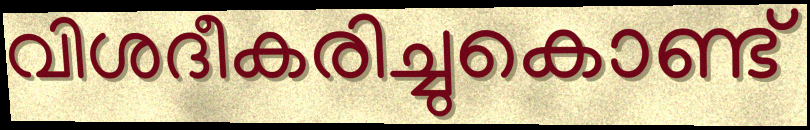
വിശദീകരിച്ചുകൊണ്ട്